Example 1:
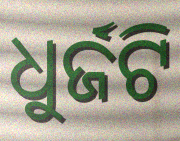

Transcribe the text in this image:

ଧୁର୍ଜଟି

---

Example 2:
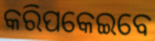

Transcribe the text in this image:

କରିପକେଇବେ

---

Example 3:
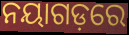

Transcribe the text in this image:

ନୟାଗଡ଼ରେ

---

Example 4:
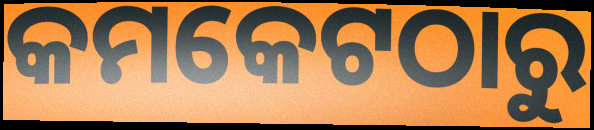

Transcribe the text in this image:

କମକେଟଠାରୁ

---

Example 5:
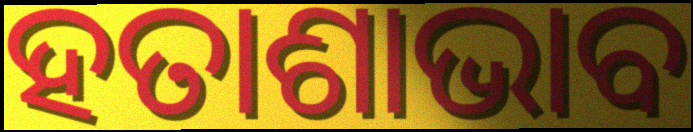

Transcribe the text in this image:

ହତାଶାଭାବ